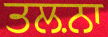
ਤਲ਼ਨਾ